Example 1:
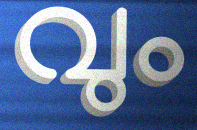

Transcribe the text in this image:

വും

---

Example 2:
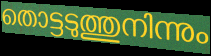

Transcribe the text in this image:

തൊട്ടടുത്തുനിന്നും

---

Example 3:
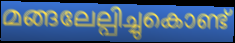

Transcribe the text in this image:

മങ്ങലേല്പിച്ചുകൊണ്ട്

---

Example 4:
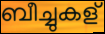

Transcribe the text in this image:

ബീച്ചുകള്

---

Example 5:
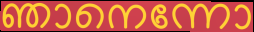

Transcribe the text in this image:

ഞാനെന്നോ